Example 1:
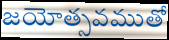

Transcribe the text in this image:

జయోత్సవముతో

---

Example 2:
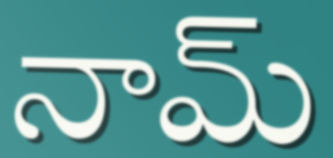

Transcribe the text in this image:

నామ్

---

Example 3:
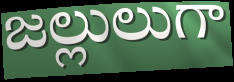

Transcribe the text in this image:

జల్లులుగా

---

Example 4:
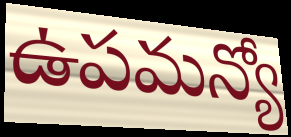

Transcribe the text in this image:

ఉపమన్యో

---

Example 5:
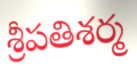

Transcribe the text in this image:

శ్రీపతిశర్మ